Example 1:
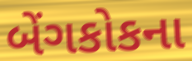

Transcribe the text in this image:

બેંગકોકના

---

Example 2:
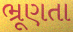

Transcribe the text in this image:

ભ્રૂણતા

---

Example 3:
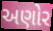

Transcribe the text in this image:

અણોર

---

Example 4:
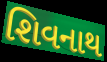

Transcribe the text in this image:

શિવનાથ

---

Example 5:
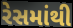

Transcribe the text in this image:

રેસમાંથી